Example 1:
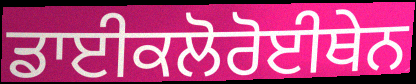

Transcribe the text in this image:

ਡਾਈਕਲੋਰੋਈਥੇਨ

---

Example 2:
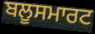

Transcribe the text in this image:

ਬਲੂਸਮਾਰਟ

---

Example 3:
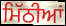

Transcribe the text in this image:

ਮਿੱਠੀਆਂ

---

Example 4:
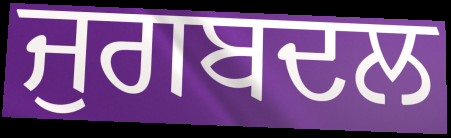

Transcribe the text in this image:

ਜੁਗਬਦਲ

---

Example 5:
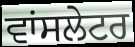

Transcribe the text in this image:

ਵਾਂਸਲੇਟਰ